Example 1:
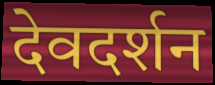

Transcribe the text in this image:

देवदर्शन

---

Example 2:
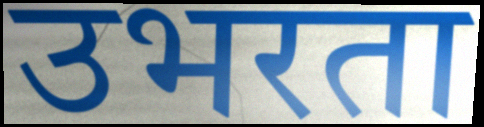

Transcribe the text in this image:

उभरता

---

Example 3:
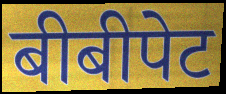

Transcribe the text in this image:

बीबीपेट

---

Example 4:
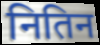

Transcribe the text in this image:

नितिन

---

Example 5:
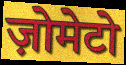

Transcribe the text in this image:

ज़ोमेटो